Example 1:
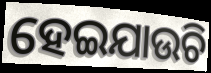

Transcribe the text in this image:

ହେଇଯାଉଚି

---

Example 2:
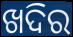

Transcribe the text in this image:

ଖଦିର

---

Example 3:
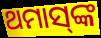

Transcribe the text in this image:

ଥମାସ୍‌ଙ୍କ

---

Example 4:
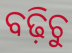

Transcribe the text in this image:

ବଢ଼ିଚୁ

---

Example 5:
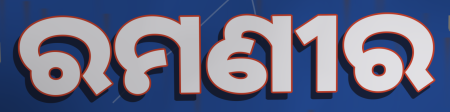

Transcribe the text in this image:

ରମଣୀର